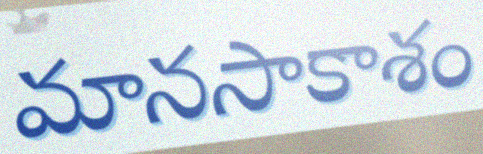
మానసాకాశం